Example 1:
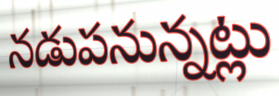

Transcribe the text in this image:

నడుపనున్నట్లు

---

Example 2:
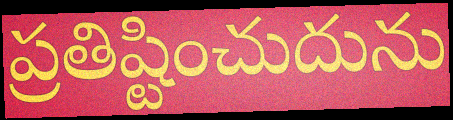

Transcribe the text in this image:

ప్రతిష్టించుదును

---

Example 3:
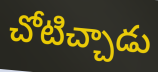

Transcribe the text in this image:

చోటిచ్చాడు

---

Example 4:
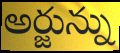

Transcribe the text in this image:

అర్జున్ను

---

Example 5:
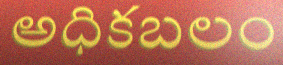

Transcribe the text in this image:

అధికబలం